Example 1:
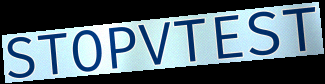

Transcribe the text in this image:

STOPVTEST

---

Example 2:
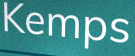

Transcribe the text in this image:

Kemps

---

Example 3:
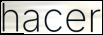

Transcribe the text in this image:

hacer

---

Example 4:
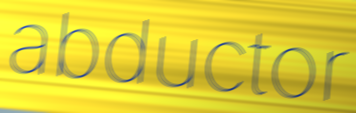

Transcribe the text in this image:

abductor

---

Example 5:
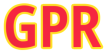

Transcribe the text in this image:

GPR